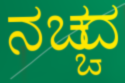
ನಚ್ಚದ